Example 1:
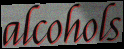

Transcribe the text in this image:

alcohols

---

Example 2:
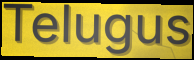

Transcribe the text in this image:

Telugus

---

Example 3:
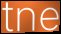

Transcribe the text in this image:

tne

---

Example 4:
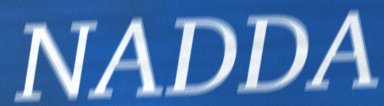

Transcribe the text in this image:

NADDA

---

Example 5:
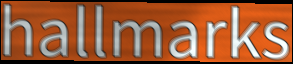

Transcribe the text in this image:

hallmarks